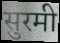
सुरमी